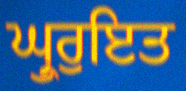
ਘ੍ਰੁਰੁਇਤ